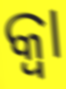
କ୍ଵା